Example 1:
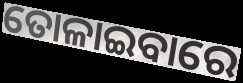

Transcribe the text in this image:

ତୋଳାଇବାରେ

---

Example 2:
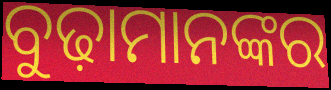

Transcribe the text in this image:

ବୁଢ଼ାମାନଙ୍କର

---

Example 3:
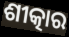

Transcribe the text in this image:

ଶୀତ୍କାର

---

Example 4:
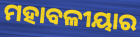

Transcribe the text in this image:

ମହାବଳୀୟାର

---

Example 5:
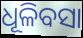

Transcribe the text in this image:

ଧୂଳିବସା